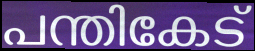
പന്തികേട്